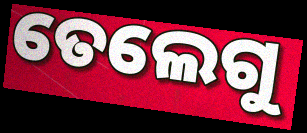
ତେଲେଗୁ